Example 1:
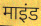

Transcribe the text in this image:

माइंड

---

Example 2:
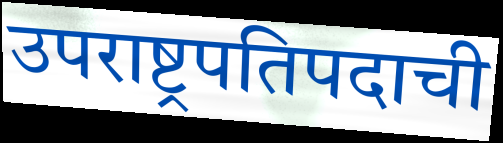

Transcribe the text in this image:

उपराष्ट्रपतिपदाची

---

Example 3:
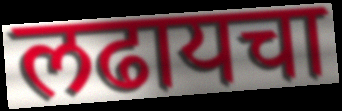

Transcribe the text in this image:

लढायचा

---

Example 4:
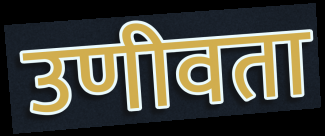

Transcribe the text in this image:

उणीवता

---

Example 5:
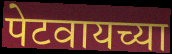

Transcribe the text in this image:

पेटवायच्या